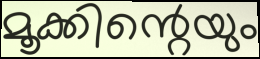
മൂക്കിന്റെയും